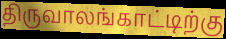
திருவாலங்காட்டிற்கு